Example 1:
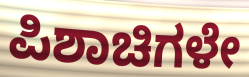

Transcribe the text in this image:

ಪಿಶಾಚಿಗಳೇ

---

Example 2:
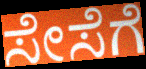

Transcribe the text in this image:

ಸೇಸೆಗೆ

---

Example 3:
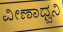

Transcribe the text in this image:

ವೀಣಾಧ್ವನಿ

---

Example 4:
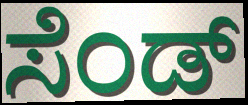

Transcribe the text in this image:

ಸೆಂಡ್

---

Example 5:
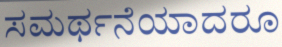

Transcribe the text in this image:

ಸಮರ್ಥನೆಯಾದರೂ